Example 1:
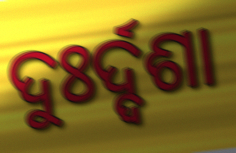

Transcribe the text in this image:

ଦୁଃର୍ଦ୍ଦଶା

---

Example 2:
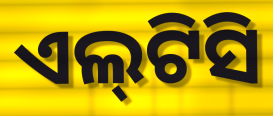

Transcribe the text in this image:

ଏଲ୍‌ଟିସି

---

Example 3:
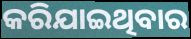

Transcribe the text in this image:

କରିଯାଇଥିବାର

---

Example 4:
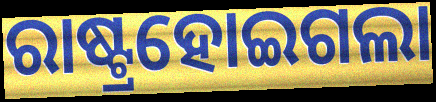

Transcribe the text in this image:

ରାଷ୍ଟ୍ରହୋଇଗଲା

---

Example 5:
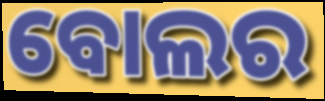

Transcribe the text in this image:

ବୋଲର